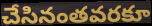
చేసినంతవరకూ